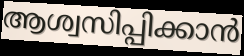
ആശ്വസിപ്പിക്കാൻ